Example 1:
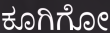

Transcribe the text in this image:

ಕೂಗಿಗೋ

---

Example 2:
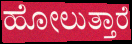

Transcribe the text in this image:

ಹೋಲುತ್ತಾರೆ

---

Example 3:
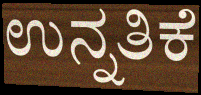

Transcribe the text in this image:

ಉನ್ನತಿಕೆ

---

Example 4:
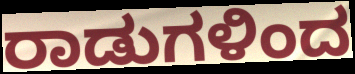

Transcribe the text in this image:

ರಾಡುಗಳಿಂದ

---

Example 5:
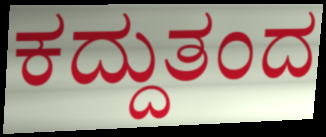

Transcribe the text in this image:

ಕದ್ದುತಂದ